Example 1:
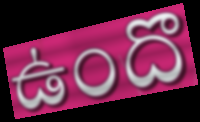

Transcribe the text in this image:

ఉందొ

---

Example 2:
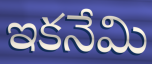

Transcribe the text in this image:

ఇకనేమి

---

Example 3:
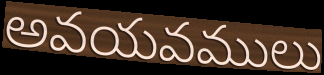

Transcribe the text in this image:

అవయవములు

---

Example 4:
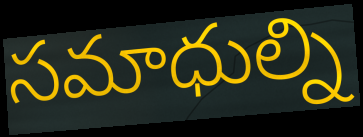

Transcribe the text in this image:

సమాధుల్ని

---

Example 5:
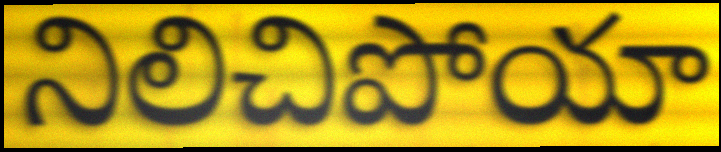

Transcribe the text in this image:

నిలిచిపోయా